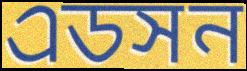
এডসন